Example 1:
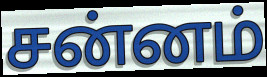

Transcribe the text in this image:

சன்னம்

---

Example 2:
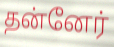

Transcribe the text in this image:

தன்னேர்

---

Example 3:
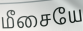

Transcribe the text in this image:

மீசையே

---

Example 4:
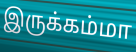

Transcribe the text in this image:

இருக்கம்மா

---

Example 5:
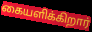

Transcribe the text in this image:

கையளிக்கிறார்